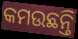
କମଉଛନ୍ତି